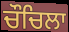
ਚੌਚਿਲਾ